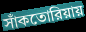
সাঁকতোরিয়ায়